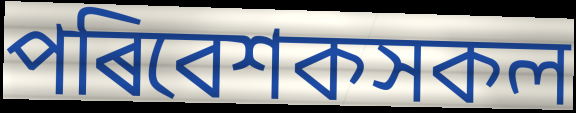
পৰিবেশকসকল